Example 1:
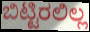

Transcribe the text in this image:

ಬಿಟ್ಟಿರಲಿಲ್ಲ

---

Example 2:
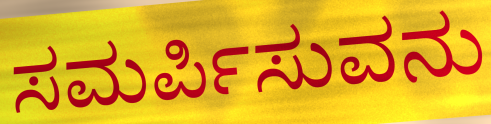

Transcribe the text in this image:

ಸಮರ್ಪಿಸುವನು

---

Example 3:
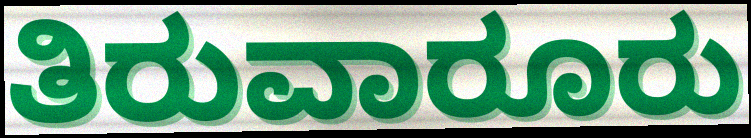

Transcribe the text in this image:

ತಿರುವಾರೂರು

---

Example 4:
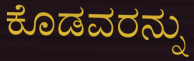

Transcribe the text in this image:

ಕೊಡವರನ್ನು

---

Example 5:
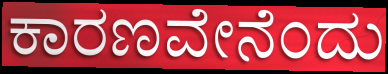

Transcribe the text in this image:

ಕಾರಣವೇನೆಂದು